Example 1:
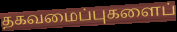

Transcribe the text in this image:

தகவமைப்புகளைப்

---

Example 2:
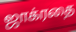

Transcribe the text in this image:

ஜாக்ரதை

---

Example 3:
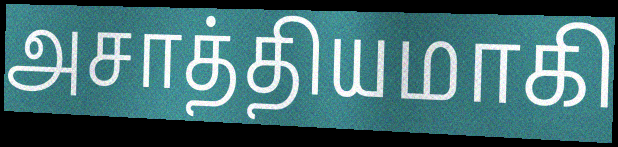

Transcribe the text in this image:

அசாத்தியமாகி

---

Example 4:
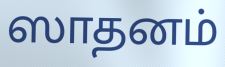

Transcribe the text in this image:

ஸாதனம்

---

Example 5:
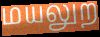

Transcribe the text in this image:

மயலுற